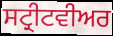
ਸਟ੍ਰੀਟਵੀਅਰ